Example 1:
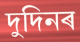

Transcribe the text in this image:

দুদিনৰ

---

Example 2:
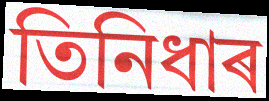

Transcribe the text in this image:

তিনিধাৰ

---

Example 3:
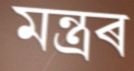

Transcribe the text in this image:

মন্ত্ৰৰ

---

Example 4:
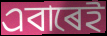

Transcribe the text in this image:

এবাৰেই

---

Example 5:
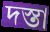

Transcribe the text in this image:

দস্তা